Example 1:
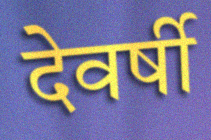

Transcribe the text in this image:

देवर्षी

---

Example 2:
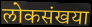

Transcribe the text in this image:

लोकसंखया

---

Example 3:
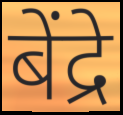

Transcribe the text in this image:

बेंद्रे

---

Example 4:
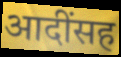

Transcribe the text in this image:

आदींसह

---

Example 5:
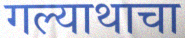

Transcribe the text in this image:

गल्याथाचा